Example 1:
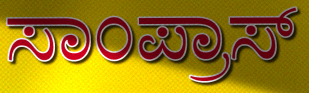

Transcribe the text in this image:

ಸಾಂಪ್ರಾಸ್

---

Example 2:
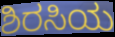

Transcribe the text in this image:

ಶಿರಸಿಯ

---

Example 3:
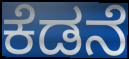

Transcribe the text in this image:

ಕೆಡನೆ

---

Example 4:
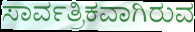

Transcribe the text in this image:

ಸಾರ್ವತ್ರಿಕವಾಗಿರುವ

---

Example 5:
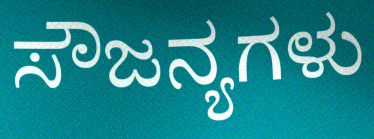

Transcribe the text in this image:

ಸೌಜನ್ಯಗಳು